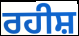
ਰਹੀਸ਼